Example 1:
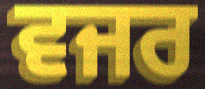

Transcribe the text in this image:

ਵਜਰ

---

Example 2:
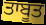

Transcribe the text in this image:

ਤਾਬੂਤ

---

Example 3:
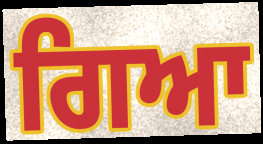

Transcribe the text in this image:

ਗਿਆ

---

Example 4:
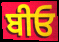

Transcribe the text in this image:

ਬੀਓ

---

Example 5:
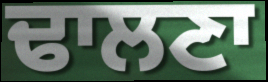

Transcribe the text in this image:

ਢਾਲਣਾ